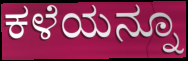
ಕಳೆಯನ್ನೂ